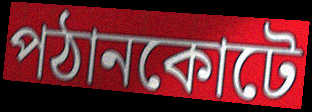
পঠানকোটে